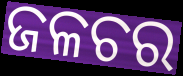
ଜଳଚର